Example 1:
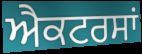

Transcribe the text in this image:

ਐਕਟਰਸਾਂ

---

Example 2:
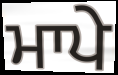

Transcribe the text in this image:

ਮਾਪੇ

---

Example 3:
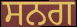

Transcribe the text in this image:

ਸਨਗ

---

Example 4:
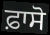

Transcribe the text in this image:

ਫ਼ਾਸੋ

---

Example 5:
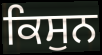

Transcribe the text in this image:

ਕਿਸੁਨ